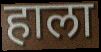
हाला